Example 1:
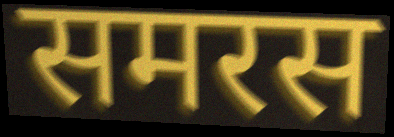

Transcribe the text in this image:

समरस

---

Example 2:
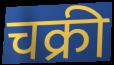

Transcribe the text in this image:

चक्री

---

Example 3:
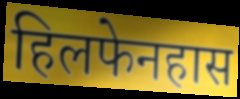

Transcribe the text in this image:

हिलफेनहास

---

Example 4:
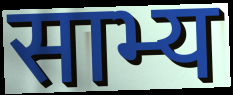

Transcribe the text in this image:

साभ्य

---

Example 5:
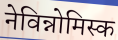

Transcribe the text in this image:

नेविन्नोमिस्क